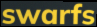
swarfs